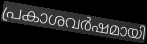
പ്രകാശവർഷമായി